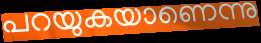
പറയുകയാണെന്നു